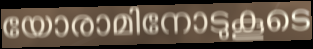
യോരാമിനോടുകൂടെ